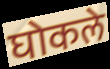
घोकले